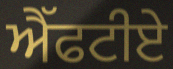
ਐੱਫਟੀਏ